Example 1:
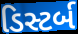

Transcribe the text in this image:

ડિસ્ટર્બ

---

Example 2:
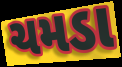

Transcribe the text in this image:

ચમડા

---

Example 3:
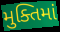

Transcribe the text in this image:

મુક્તિમાં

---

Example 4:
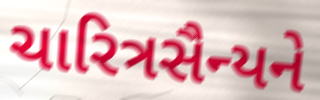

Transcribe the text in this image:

ચારિત્રસૈન્યને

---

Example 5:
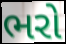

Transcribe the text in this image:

ભરો